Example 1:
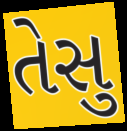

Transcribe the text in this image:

તેસુ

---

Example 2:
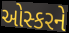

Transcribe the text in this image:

ઓસ્કરને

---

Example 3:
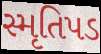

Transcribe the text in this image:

સ્મૃતિપડ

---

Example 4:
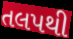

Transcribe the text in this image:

તલપથી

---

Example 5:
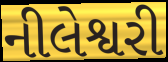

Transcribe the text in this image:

નીલેશ્વરી